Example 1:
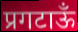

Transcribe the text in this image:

प्रगटाऊँ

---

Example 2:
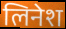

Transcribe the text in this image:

लिनेश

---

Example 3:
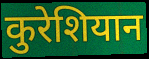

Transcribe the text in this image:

कुरेशियान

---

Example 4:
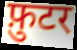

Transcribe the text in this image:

फ़ुटर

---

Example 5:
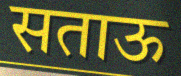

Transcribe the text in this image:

सताऊ